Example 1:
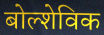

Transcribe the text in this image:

बोल्शेविक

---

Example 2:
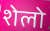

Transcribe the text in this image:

शेलो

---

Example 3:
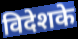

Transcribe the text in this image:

विदेशके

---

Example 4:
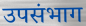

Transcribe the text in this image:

उपसंभाग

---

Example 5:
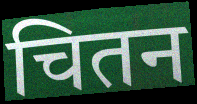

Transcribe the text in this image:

चितन